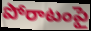
పోరాటంపై